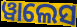
ୱାଲେସ